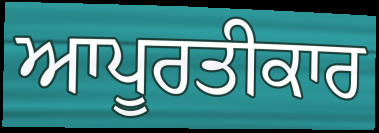
ਆਪੂਰਤੀਕਾਰ